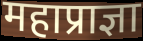
महाप्राज्ञा